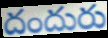
దందురు